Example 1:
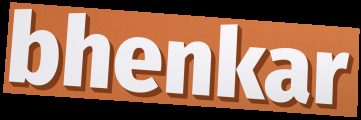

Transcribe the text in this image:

bhenkar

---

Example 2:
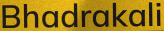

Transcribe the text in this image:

Bhadrakali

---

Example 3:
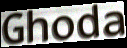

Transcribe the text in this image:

Ghoda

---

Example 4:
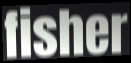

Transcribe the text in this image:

fisher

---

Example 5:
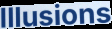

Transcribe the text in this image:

Illusions